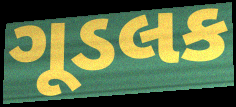
ગૂડલક